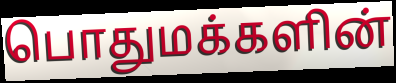
பொதுமக்களின்